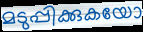
മടുപ്പിക്കുകയോ